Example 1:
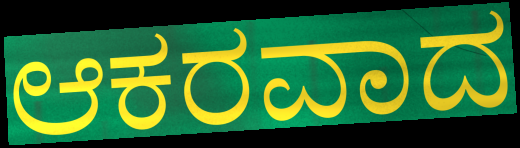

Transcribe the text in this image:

ಆಕರವಾದ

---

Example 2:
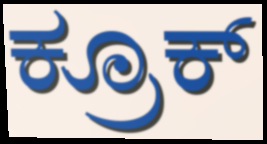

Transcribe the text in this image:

ಕ್ರೂಕ್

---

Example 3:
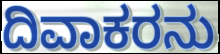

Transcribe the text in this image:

ದಿವಾಕರನು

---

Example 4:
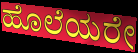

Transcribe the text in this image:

ಹೊಲೆಯರೇ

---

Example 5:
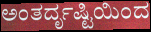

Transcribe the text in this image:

ಅಂತರ್ದೃಷ್ಟಿಯಿಂದ